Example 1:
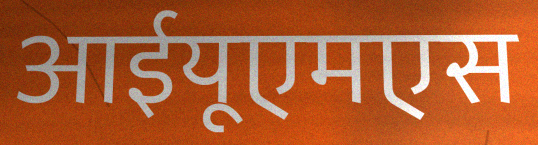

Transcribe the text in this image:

आईयूएमएस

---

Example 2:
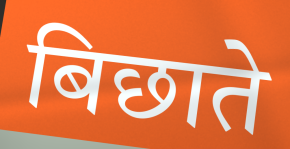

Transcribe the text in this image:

बिछाते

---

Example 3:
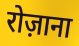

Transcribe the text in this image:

रोज़ाना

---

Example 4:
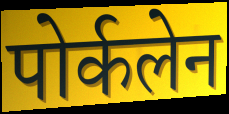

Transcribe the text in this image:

पोर्कलेन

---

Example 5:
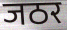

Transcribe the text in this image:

जठर